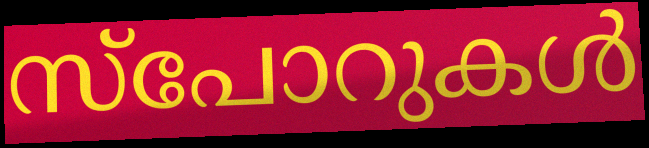
സ്പോറുകൾ